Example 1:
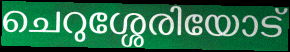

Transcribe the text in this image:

ചെറുശ്ശേരിയോട്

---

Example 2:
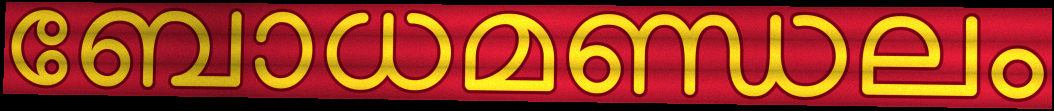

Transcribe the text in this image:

ബോധമണ്ഡലം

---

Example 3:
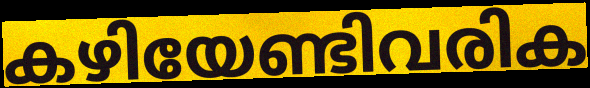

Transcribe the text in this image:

കഴിയേണ്ടിവരിക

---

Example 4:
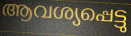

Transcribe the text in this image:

ആവശ്യപ്പെട്ടു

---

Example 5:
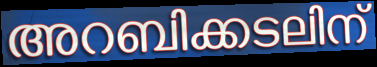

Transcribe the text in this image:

അറബിക്കടലിന്